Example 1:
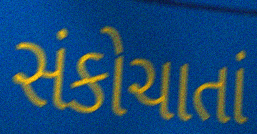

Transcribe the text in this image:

સંકોચાતાં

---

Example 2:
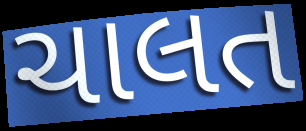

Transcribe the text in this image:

ચાલત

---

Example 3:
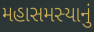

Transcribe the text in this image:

મહાસમસ્યાનું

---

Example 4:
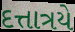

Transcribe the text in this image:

દત્તાત્રયે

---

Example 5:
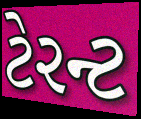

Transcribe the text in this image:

ટેરન્ટ